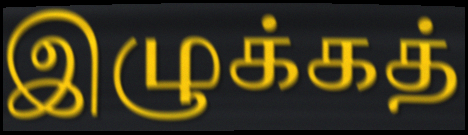
இழுக்கத்